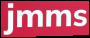
jmms